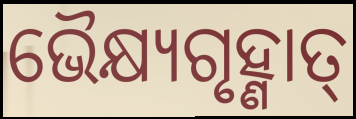
ଭୈକ୍ଷ୍ୟଗୃହ୍ଣାତ୍